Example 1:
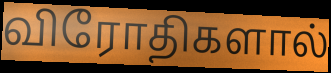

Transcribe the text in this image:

விரோதிகளால்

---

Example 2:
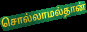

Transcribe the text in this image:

சொல்லாமல்தான்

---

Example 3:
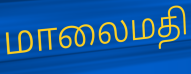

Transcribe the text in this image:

மாலைமதி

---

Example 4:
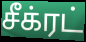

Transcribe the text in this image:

சீக்ரட்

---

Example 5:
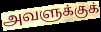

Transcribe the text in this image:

அவளுக்குக்